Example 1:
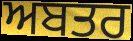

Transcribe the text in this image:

ਅਬਤਰ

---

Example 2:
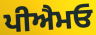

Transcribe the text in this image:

ਪੀਐਮਓ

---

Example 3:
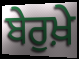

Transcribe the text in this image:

ਬੇਰੁਖ਼ੇ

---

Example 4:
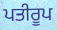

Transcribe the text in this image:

ਪਤੀਰੂਪ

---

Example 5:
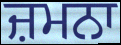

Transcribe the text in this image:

ਜ਼ਮਨਾ